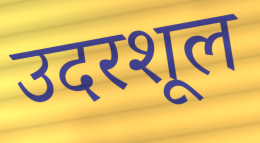
उदरशूल